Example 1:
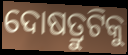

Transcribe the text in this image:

ଦୋଷତ୍ରୁଟିକୁ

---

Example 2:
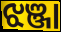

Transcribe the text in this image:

ଝଞ୍ଜା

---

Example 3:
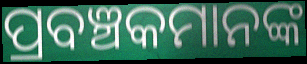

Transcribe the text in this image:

ପ୍ରବଞ୍ଚକମାନଙ୍କ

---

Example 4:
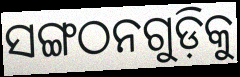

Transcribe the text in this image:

ସଙ୍ଗଠନଗୁଡ଼ିକୁ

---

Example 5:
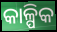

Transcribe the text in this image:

କାଳ୍ପିକ